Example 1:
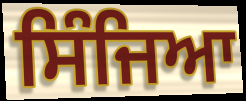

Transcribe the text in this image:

ਸਿੰਜਿਆ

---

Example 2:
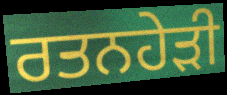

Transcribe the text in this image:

ਰਤਨਹੇੜੀ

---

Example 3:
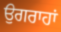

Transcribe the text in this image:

ਉਗਰਾਹਾਂ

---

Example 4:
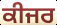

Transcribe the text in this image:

ਕੀਜਰ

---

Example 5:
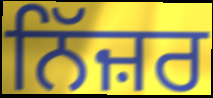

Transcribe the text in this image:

ਨਿੱਜ਼ਰ